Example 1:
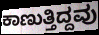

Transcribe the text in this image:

ಕಾಣುತ್ತಿದ್ದವು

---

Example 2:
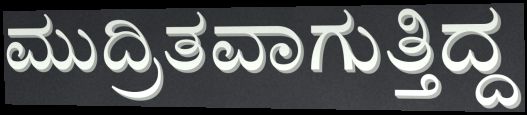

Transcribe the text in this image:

ಮುದ್ರಿತವಾಗುತ್ತಿದ್ದ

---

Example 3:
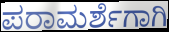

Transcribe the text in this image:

ಪರಾಮರ್ಶೆಗಾಗಿ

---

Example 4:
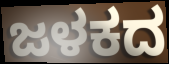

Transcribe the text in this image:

ಜಳಕದ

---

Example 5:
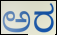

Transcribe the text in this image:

ಅರ